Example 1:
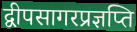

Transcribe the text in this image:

द्वीपसागरप्रज्ञप्ति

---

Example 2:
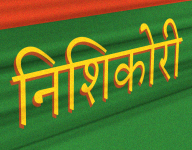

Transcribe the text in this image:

निशिकोरी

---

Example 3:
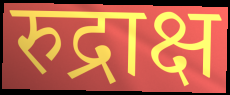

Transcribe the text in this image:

रुद्राक्ष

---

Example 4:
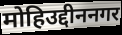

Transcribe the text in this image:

मोहिउद्दीननगर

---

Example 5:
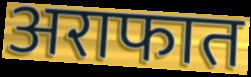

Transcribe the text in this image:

अराफात